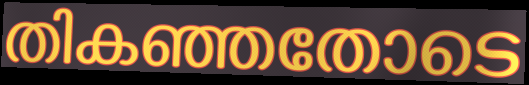
തികഞ്ഞതോടെ